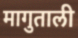
मागुताली